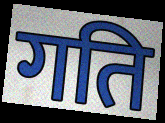
गति